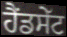
ਹੈਂਡਸੇੱਟ